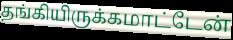
தங்கியிருக்கமாட்டேன்